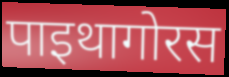
पाइथागोरस